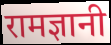
रामज्ञानी